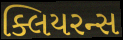
ક્લિયરન્સ